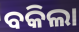
ବକିଲା